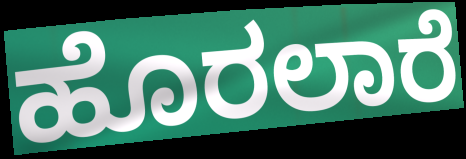
ಹೊರಲಾರೆ